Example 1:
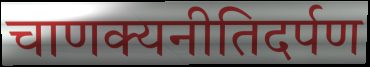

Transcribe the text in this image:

चाणक्यनीतिदर्पण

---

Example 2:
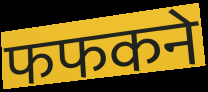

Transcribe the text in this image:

फफकने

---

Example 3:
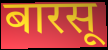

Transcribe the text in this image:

बारसू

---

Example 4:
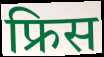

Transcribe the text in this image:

फ्रिस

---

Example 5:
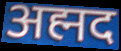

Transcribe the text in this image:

अह्मद